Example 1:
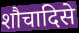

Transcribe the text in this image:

शौचादिसे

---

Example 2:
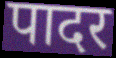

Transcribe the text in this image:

पादर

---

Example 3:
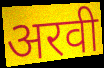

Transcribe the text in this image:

अरवी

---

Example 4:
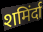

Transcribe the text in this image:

शमिंर्दा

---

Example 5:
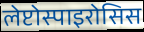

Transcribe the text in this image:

लेप्टोस्पाइरोसिस